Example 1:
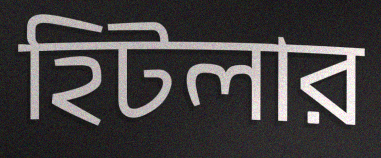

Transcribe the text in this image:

হিটলার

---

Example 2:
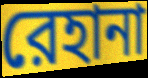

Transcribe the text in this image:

রেহানা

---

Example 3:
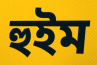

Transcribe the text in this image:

হুইম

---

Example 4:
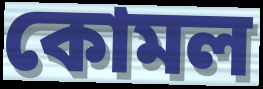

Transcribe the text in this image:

কোমল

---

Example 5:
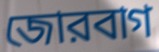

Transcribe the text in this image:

জোরবাগ